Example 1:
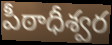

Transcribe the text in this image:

పీఠాధీశ్వర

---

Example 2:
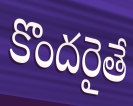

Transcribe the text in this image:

కొందరైతే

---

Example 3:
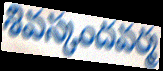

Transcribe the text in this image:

శివస్కందవర్మ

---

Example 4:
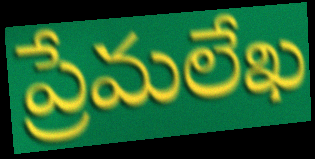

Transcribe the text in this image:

ప్రేమలేఖ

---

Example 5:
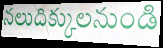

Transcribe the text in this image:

నలుదిక్కులనుండి